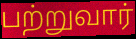
பற்றுவார்